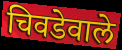
चिवडेवाले